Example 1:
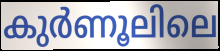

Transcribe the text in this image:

കുർണൂലിലെ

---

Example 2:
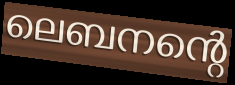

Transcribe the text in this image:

ലെബനന്റെ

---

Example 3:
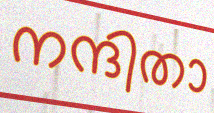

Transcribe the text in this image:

നന്ദിതാ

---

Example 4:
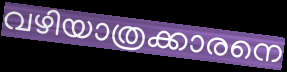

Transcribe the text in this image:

വഴിയാത്രക്കാരനെ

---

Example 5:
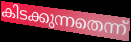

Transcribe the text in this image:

കിടക്കുന്നതെന്ന്